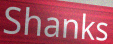
Shanks